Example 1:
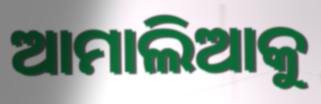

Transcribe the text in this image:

ଆମାଲିଆକୁ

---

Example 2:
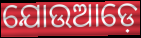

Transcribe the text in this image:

ଯୋଉଆଡ଼େ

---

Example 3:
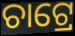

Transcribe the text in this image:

ଚାଟ୍ରେ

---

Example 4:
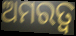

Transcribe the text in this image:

ଅମରତ୍ବ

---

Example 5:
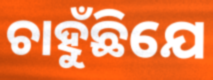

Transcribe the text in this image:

ଚାହୁଁଛିଯେ